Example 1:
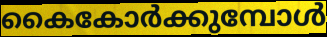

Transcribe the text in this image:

കൈകോർക്കുമ്പോൾ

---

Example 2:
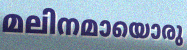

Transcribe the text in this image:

മലിനമായൊരു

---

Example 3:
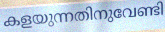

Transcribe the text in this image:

കളയുന്നതിനുവേണ്ടി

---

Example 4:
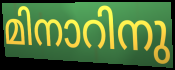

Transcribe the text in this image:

മിനാറിനു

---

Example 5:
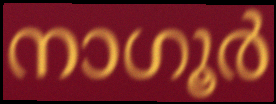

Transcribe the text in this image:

നാഗൂർ